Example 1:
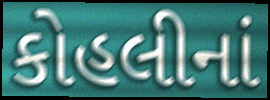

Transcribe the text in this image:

કોહલીનાં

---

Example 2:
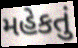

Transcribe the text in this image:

મહેકતું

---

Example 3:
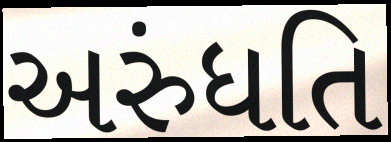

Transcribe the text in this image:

અરુંધતિ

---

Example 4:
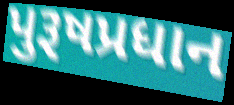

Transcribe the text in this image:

પુરૂષપ્રધાન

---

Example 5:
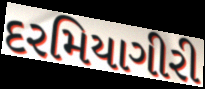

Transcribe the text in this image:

દરમિયાગીરી